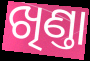
ଖିଣ୍ତା